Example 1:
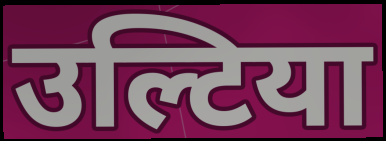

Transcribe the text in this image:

उल्टिया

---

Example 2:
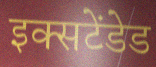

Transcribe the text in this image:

इक्सटेंडेड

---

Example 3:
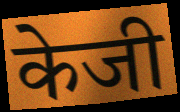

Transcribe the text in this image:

केजी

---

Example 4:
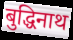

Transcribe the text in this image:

बुद्धिनाथ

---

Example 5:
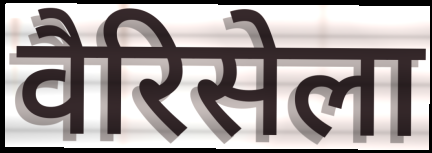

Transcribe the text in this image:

वैरिसेला